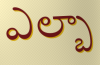
ఎల్బా